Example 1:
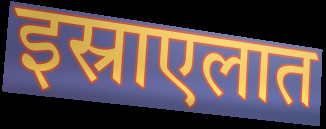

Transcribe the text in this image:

इस्राएलात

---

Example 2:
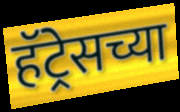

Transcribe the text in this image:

हॅट्रेसच्या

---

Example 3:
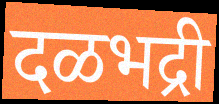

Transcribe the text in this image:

दळभद्री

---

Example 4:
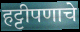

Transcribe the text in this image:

हट्टीपणाचे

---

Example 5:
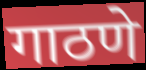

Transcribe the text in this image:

गाठणे